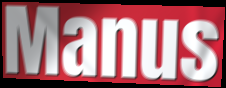
Manus